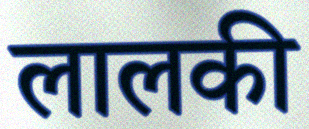
लालकी